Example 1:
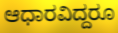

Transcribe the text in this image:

ಆಧಾರವಿದ್ದರೂ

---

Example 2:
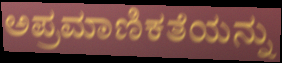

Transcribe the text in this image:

ಅಪ್ರಮಾಣಿಕತೆಯನ್ನು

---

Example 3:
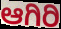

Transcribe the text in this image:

ಆಗಿರಿ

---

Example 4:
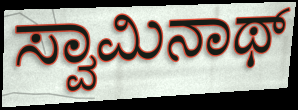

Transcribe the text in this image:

ಸ್ವಾಮಿನಾಥ್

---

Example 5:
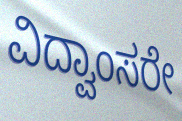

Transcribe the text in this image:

ವಿದ್ವಾಂಸರೇ